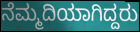
ನೆಮ್ಮದಿಯಾಗಿದ್ದರು